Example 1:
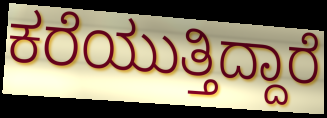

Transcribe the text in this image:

ಕರೆಯುತ್ತಿದ್ದಾರೆ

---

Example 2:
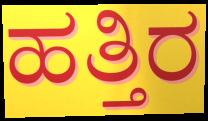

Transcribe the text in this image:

ಹತ್ತಿರ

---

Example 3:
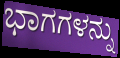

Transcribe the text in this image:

ಭಾಗಗಳನ್ನು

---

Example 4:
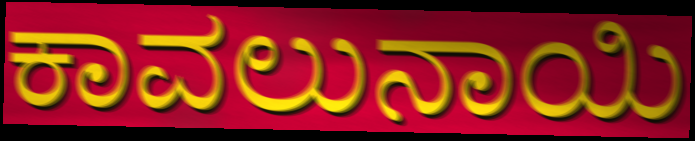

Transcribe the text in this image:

ಕಾವಲುನಾಯಿ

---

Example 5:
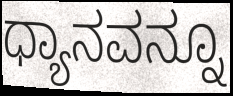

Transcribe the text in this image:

ಧ್ಯಾನವನ್ನೂ